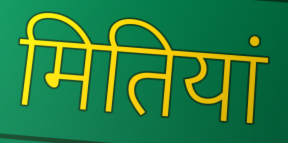
मितियां